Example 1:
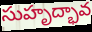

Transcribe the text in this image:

సుహృద్భావ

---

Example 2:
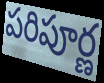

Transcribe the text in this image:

పరిపూర్ణ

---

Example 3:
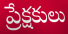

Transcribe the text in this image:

ప్రేక్షకులు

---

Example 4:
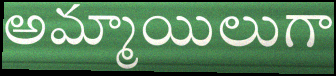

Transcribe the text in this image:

అమ్మాయిలుగా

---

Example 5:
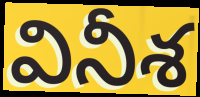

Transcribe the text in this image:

వినీశ